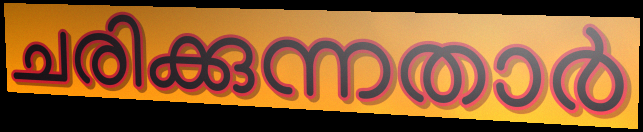
ചരിക്കുന്നതാർ